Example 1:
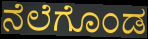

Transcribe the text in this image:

ನೆಲೆಗೊಂಡ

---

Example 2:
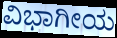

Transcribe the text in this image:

ವಿಭಾಗೀಯ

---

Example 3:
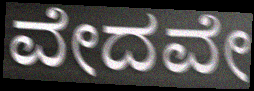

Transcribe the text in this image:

ವೇದವೇ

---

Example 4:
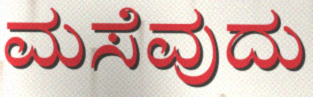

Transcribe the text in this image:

ಮಸೆವುದು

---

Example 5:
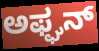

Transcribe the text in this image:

ಅಫ್ಘನ್